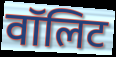
वॉलिट